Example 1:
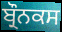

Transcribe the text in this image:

ਬ੍ਰੌਨਕਸ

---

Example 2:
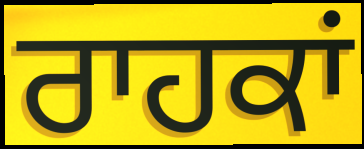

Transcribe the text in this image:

ਰਾਹਕਾਂ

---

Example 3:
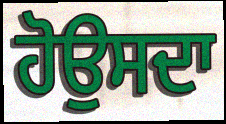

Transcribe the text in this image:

ਹੋਉਸਦਾ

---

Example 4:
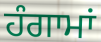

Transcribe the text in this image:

ਹੰਗਾਮਾਂ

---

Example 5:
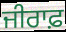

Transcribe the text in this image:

ਜੀਰਾਫ਼